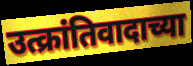
उत्क्रांतिवादाच्या